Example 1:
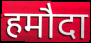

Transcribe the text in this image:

हमौदा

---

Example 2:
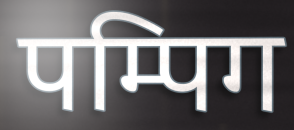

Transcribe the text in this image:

पम्पिग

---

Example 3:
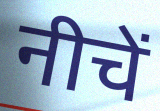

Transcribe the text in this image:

नीचें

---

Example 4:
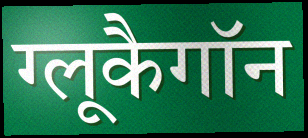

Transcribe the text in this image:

ग्लूकैगॉन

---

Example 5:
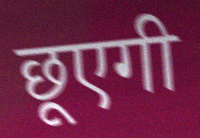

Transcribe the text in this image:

छूएगी